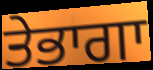
ਤੇਭਾਗਾ